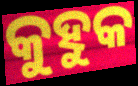
କୁହୁକ